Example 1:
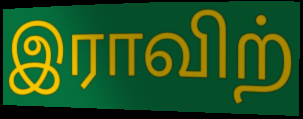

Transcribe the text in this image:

இராவிற்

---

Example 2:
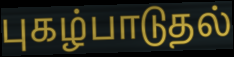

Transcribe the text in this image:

புகழ்பாடுதல்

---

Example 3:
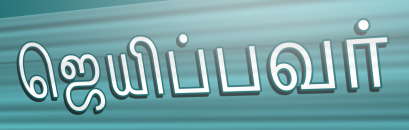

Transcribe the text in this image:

ஜெயிப்பவர்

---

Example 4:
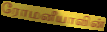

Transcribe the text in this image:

ரோமனீயாவின்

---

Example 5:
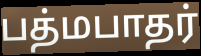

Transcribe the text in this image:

பத்மபாதர்